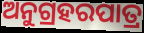
ଅନୁଗ୍ରହରପାତ୍ର